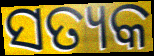
ସତ୍ୟକ